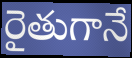
రైతుగానే